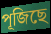
পূজিছে